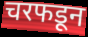
चरफडून